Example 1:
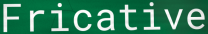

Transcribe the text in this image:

Fricative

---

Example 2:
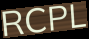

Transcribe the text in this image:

RCPL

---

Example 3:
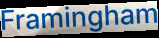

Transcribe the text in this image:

Framingham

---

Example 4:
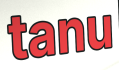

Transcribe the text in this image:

tanu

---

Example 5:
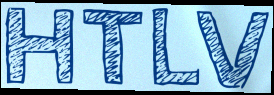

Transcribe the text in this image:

HTLV